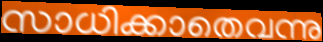
സാധിക്കാതെവന്നു